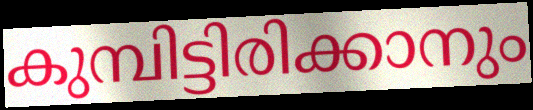
കുമ്പിട്ടിരിക്കാനും